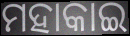
ମହାକାଇ